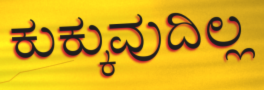
ಕುಕ್ಕುವುದಿಲ್ಲ